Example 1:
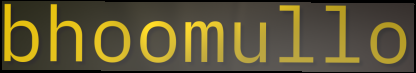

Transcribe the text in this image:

bhoomullo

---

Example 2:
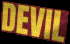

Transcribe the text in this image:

DEVIL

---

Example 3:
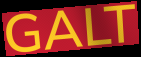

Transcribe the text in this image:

GALT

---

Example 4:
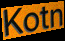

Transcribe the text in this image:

Kotn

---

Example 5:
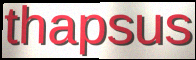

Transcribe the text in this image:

thapsus